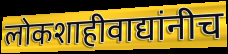
लोकशाहीवाद्यांनीच